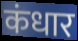
कंधार